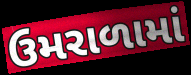
ઉમરાળામાં